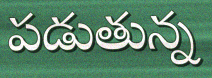
పడుతున్న